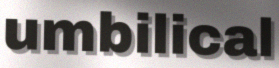
umbilical